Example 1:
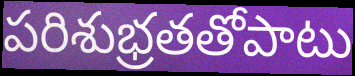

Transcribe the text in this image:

పరిశుభ్రతతోపాటు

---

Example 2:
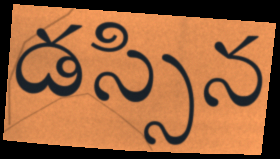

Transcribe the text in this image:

డస్సిన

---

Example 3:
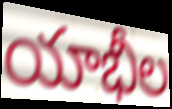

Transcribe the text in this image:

యాభీల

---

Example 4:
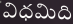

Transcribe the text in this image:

విధమిది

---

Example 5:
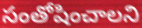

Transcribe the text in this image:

సంతోషించాలని